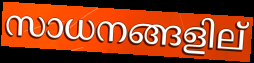
സാധനങ്ങളില്